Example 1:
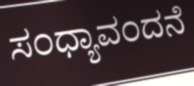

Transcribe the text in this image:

ಸಂಧ್ಯಾವಂದನೆ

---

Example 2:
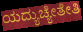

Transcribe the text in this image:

ಯದ್ಯುಚ್ಯೇತೇತಿ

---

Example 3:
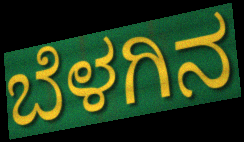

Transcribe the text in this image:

ಬೆಳಗಿನ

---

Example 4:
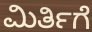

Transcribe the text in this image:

ಮಿರ್ತಿಗೆ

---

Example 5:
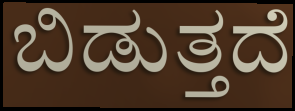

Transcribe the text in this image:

ಬಿಡುತ್ತದೆ